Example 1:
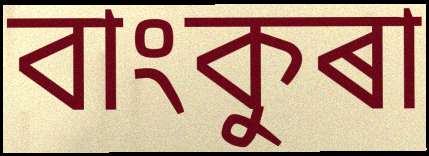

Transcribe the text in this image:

বাংকুৰা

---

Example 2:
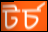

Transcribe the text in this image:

টৰ্চ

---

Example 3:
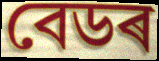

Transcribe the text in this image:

বেডৰ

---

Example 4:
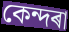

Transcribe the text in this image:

কেন্দৰা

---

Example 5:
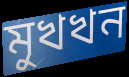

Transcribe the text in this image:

মুখখন